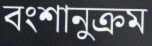
বংশানুক্রম